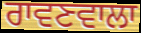
ਰਾਵਣਵਾਲਾ